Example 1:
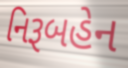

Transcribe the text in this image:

નિરૂબહેન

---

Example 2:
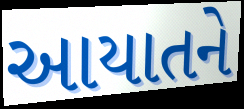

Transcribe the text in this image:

આયાતને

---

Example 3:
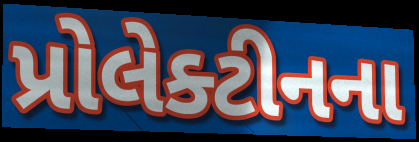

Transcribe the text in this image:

પ્રોલેક્ટીનના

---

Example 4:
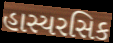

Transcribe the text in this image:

હાસ્યરસિક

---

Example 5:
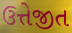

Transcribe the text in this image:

ઉત્તેજીત